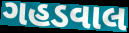
ગહડવાલ